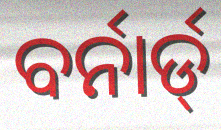
ବର୍ନାର୍ଡ୍